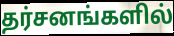
தர்சனங்களில்